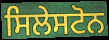
ਸਿਲੇਸਟੋਨ